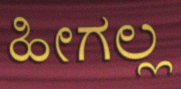
ಹೀಗಲ್ಲ